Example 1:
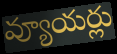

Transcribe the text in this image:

వ్యూయర్లు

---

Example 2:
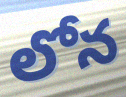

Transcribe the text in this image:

లోన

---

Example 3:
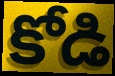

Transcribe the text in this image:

కోడి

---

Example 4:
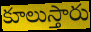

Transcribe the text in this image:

కూలుస్తారు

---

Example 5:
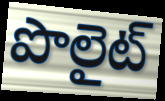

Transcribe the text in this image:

పొలైట్